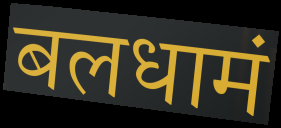
बलधामं